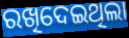
ରଖିଦେଇଥିଲା